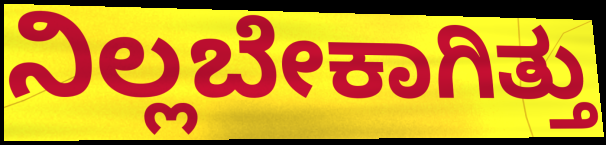
ನಿಲ್ಲಬೇಕಾಗಿತ್ತು